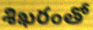
శిఖరంతో